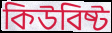
কিউবিষ্ট